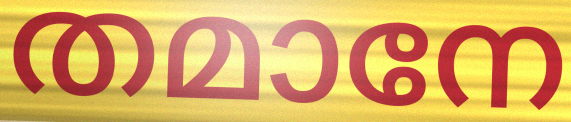
തമാനേ